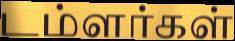
டம்ளர்கள்